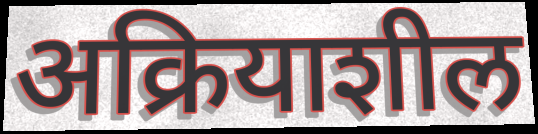
अक्रियाशील